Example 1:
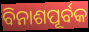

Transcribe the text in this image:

ବିନାଶପୂର୍ବକ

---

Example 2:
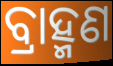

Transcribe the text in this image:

ବ୍ରାହ୍ମଣ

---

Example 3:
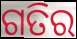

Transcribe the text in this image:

ଗତିର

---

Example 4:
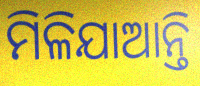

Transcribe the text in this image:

ମିଳିଯାଆନ୍ତି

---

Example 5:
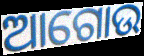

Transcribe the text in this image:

ଆଗୋଉ